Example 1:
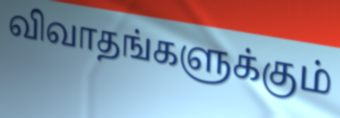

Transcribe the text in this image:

விவாதங்களுக்கும்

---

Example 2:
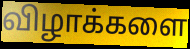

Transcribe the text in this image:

விழாக்களை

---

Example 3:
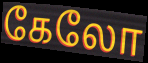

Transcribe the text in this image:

கேலோ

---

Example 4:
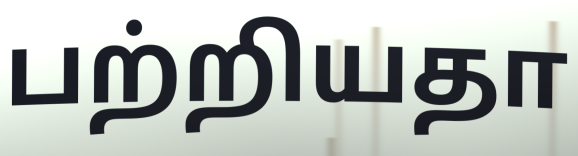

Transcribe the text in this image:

பற்றியதா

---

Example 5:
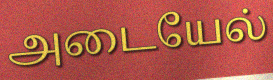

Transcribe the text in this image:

அடையேல்